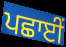
ਪਛਾਈਂ